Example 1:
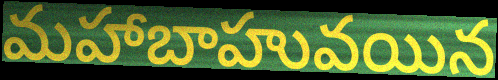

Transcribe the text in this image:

మహాబాహువయిన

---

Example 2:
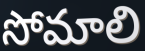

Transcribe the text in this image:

సోమాలి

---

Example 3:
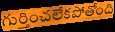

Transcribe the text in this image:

గుర్తించలేకపోతోంది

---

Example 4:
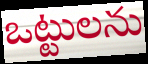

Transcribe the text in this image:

ఒట్టులను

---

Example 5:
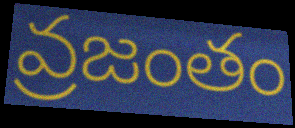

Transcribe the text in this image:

వ్రజంతం